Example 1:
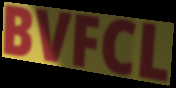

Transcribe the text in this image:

BVFCL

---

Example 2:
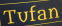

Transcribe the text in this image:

Tufan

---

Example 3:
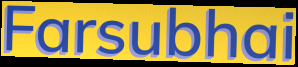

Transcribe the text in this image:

Farsubhai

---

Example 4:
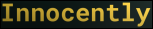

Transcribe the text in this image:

Innocently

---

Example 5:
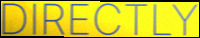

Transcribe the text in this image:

DIRECTLY